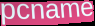
pcname